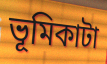
ভূমিকাটা